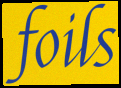
foils